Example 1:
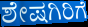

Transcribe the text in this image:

ಶೇಷಗಿರಿಗೆ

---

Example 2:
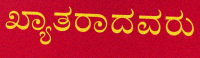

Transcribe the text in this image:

ಖ್ಯಾತರಾದವರು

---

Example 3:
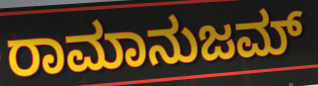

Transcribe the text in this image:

ರಾಮಾನುಜಮ್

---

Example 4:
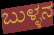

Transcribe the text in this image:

ಬುಳ್ಳನ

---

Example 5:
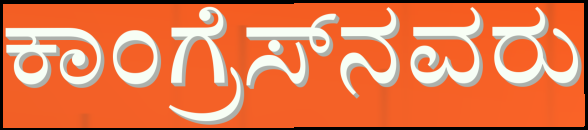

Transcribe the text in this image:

ಕಾಂಗ್ರೆಸ್‌ನವರು